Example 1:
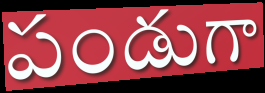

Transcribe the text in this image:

పండుగా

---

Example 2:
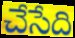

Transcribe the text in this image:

చేసేది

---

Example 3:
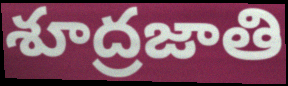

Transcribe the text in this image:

శూద్రజాతి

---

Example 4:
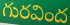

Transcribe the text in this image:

గురవింద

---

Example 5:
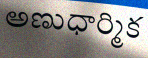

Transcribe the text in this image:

అణుధార్మిక